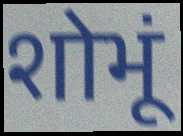
शोभूं